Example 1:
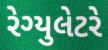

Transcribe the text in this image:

રેગ્યુલેટરે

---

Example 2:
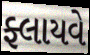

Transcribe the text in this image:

ફ્લાયવે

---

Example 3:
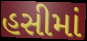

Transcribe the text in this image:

હસીમાં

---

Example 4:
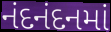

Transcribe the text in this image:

નંદનંદનમાં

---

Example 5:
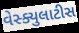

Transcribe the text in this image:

વેસ્ક્યુલાટીસ